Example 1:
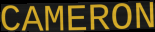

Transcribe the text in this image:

CAMERON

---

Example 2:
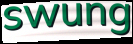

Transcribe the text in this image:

swung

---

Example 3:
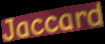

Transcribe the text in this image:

Jaccard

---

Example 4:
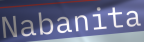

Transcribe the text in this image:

Nabanita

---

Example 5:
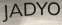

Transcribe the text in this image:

JADYO